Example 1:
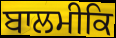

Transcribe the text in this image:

ਬਾਲਮੀਕਿ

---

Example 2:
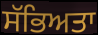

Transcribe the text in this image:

ਸੱਭਿਅਤਾ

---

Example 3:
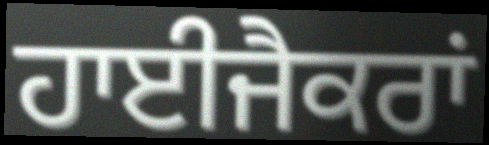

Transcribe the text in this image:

ਹਾਈਜੈਕਰਾਂ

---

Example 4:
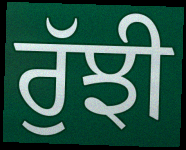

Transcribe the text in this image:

ਰੁੱਝੀ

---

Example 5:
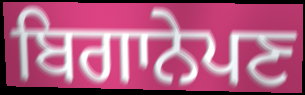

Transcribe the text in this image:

ਬਿਗਾਨੇਪਣ